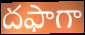
దఫాగా